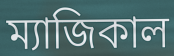
ম্যাজিকাল